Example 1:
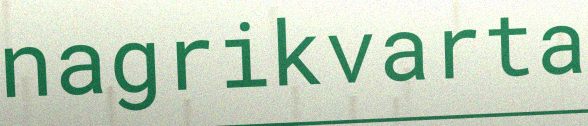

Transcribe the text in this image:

nagrikvarta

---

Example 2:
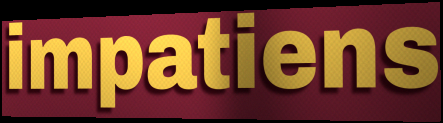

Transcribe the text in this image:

impatiens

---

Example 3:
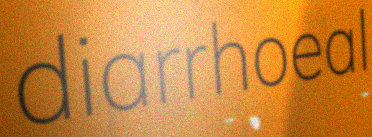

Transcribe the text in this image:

diarrhoeal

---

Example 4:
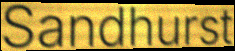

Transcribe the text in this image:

Sandhurst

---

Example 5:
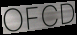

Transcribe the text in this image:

OFCD